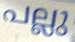
പല്ലു